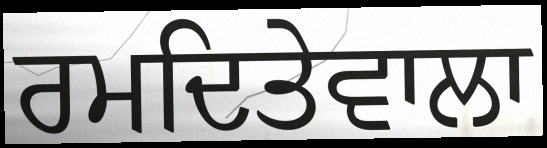
ਰਮਦਿਤੇਵਾਲਾ